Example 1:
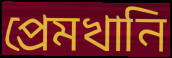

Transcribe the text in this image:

প্রেমখানি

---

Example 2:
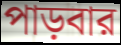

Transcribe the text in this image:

পাড়বার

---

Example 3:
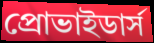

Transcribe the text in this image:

প্রোভাইডার্স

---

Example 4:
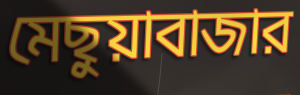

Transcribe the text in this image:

মেছুয়াবাজার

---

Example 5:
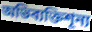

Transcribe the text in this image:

অভিব্যক্তিশূন্য